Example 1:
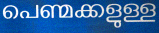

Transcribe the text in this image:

പെണ്മക്കളുള്ള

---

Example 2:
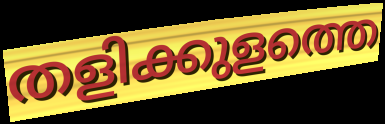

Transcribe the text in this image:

തളിക്കുളത്തെ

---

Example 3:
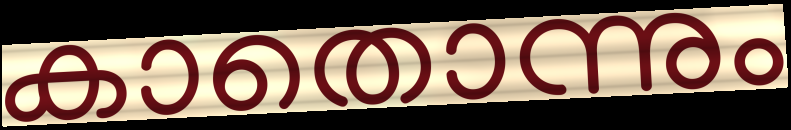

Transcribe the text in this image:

കാതൊന്നും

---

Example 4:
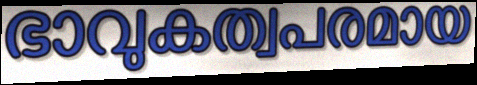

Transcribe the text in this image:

ഭാവുകത്വപരമായ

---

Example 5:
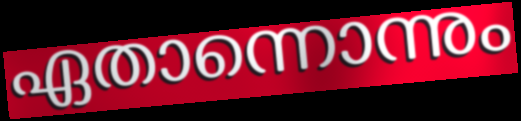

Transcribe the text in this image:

ഏതാന്നൊന്നും